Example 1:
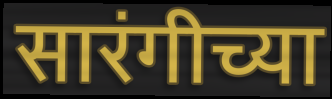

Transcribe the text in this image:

सारंगीच्या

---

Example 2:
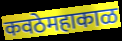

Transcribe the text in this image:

कवठेमहाकाळ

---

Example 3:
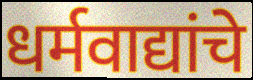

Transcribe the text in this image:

धर्मवाद्यांचे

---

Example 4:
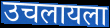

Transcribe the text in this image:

उचलायला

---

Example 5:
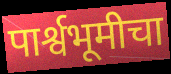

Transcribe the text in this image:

पार्श्वभूमीचा